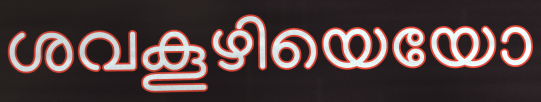
ശവകൂഴിയെയോ